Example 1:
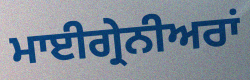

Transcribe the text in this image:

ਮਾਈਗ੍ਰੇਨੀਅਰਾਂ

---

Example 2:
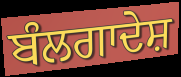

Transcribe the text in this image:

ਬੰਲਗਾਦੇਸ਼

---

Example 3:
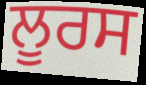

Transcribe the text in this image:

ਲੂਰਸ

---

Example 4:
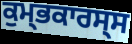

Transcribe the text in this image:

ਕੁਮ੍ਭਕਾਰਸ੍ਸ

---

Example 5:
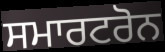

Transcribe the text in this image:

ਸਮਾਰਟਰੋਨ